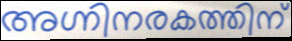
അഗ്നിനരകത്തിന്